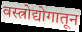
वस्त्रोद्योगातून